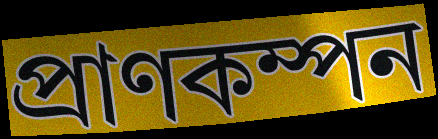
প্রাণকম্পন